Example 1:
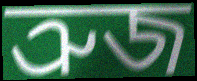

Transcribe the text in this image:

ত্রুজ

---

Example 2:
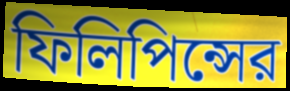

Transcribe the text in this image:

ফিলিপিন্সের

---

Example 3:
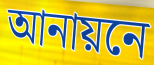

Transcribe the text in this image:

আনায়নে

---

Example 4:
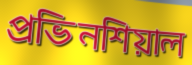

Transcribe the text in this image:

প্রভিনশিয়াল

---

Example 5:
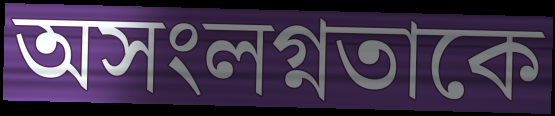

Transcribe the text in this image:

অসংলগ্নতাকে